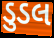
ડુડલ